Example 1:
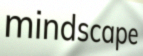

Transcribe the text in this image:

mindscape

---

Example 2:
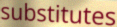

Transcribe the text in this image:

substitutes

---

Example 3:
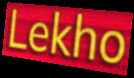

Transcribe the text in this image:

Lekho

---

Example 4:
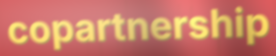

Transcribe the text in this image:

copartnership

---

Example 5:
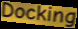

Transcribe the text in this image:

Docking